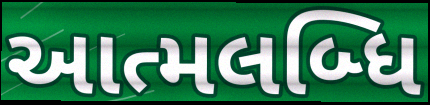
આત્મલબ્ધિ